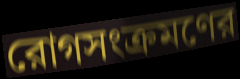
রোগসংক্রমণের